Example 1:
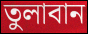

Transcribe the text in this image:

তুলাবান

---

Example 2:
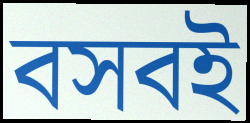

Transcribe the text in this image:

বসবই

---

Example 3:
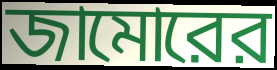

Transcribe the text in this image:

জামোরের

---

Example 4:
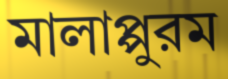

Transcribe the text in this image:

মালাপ্পুরম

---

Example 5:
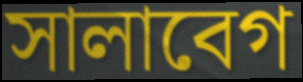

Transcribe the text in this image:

সালাবেগ